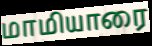
மாமியாரை